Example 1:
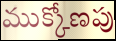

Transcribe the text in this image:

ముక్కోణపు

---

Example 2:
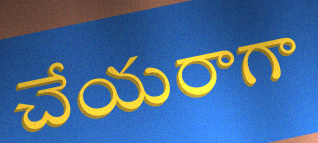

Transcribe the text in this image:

చేయరాగా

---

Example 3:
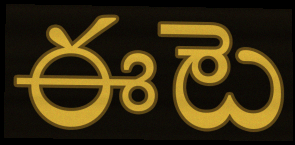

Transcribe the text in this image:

ఈటె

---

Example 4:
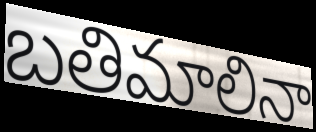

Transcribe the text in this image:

బతిమాలినా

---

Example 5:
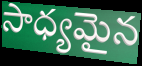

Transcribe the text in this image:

సాధ్యమైన